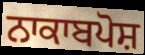
ਨਾਕਾਬਪੋਸ਼